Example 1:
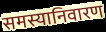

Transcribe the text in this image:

समस्यानिवारण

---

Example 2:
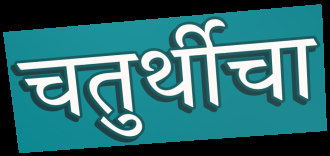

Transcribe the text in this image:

चतुर्थीचा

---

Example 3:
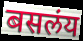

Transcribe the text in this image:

बसलंय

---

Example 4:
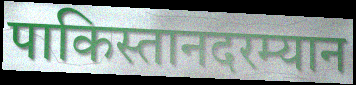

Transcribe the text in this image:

पाकिस्तानदरम्यान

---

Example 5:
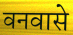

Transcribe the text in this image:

वनवासे